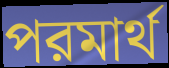
পরমার্থ